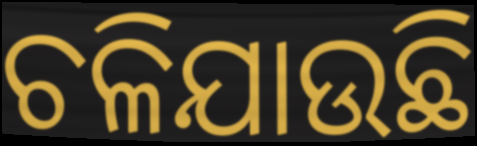
ଚଳିଯାଉଛି